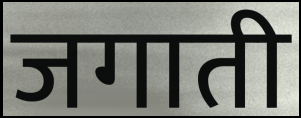
जगाती